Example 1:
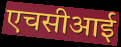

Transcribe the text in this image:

एचसीआई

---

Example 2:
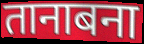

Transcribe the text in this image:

तानाबना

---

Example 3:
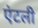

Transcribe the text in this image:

एंटली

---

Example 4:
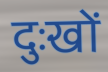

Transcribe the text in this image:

दुःखों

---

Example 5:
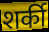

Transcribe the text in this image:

शर्की